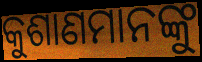
କୁଶାଣମାନଙ୍କୁ